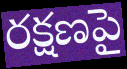
రక్షణపై